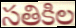
సతికిల